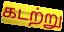
கடற்று